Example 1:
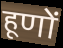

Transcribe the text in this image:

हूणों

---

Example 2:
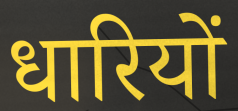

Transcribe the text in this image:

धारियों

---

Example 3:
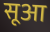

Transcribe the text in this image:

सूआ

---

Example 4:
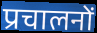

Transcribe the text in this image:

प्रचालनों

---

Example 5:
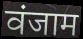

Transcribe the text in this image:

वंजाम